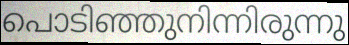
പൊടിഞ്ഞുനിന്നിരുന്നു